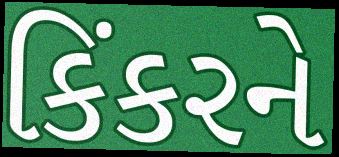
કિંકરને